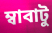
ম্বাবাটু